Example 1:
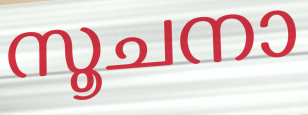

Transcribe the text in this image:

സൂചനാ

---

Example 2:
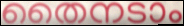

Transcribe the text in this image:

തൈനടാം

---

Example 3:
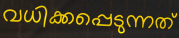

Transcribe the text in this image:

വധിക്കപ്പെടുന്നത്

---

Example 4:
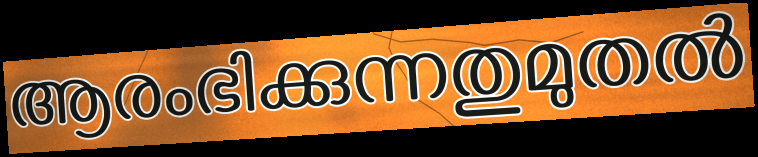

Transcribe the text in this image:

ആരംഭിക്കുന്നതുമുതൽ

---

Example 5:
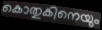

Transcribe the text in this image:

കൊതുകിനെയും